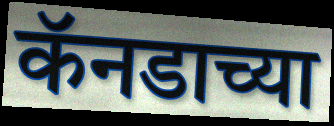
कॅनडाच्या